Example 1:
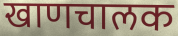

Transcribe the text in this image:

खाणचालक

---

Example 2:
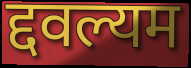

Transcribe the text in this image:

द्दवल्यम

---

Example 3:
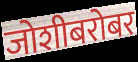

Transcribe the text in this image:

जोशीबरोबर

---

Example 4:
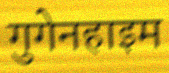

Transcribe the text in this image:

गुगेनहाइम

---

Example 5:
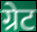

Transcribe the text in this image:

ग्रेट